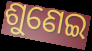
ଶୁଣେଇ